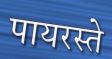
पायरस्ते